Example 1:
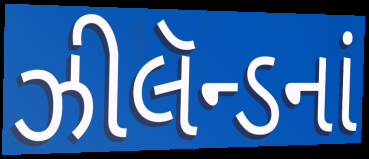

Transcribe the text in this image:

ઝીલૅન્ડનાં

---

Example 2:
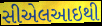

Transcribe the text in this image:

સીએલઆઇથી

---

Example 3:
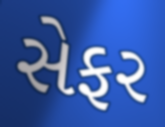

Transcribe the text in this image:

સેફર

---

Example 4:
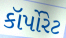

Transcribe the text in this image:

કૉર્પોરેટ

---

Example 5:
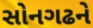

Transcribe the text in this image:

સોનગઢને